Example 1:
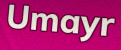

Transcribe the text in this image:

Umayr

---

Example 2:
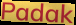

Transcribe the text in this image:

Padak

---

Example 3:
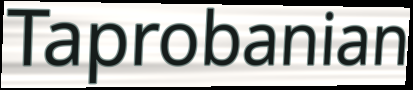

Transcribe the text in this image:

Taprobanian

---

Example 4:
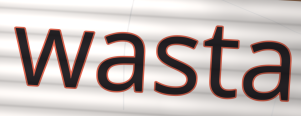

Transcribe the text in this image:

wasta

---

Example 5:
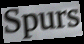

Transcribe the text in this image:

Spurs